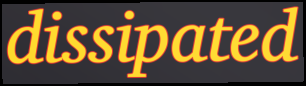
dissipated